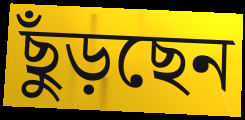
ছুঁড়ছেন